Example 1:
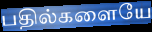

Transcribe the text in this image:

பதில்களையே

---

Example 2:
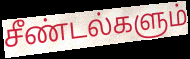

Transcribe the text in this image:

சீண்டல்களும்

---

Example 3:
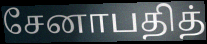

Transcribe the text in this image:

சேனாபதித்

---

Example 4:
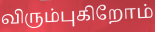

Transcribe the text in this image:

விரும்புகிறோம்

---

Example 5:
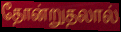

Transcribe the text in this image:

தோன்றுதலால்